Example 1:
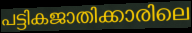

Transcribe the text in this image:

പട്ടികജാതിക്കാരിലെ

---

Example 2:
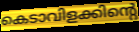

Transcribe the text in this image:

കെടാവിളക്കിന്റെ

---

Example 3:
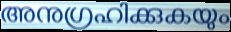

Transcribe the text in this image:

അനുഗ്രഹിക്കുകയും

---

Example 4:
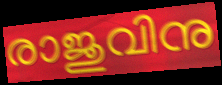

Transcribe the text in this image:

രാജുവിനു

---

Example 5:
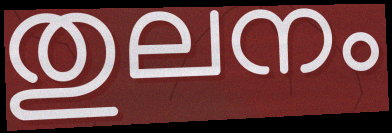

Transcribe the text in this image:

തുലനം